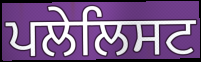
ਪਲੇਲਿਸਟ